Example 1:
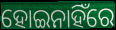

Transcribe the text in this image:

ହୋଇନାହିଁରେ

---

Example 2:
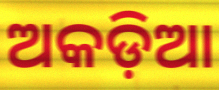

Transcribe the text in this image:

ଅକଡ଼ିଆ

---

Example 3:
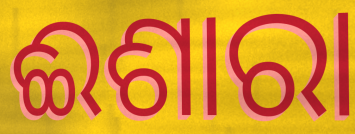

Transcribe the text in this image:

ଈଶାରା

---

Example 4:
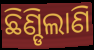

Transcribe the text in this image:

ଛିଣ୍ଡିଲାଣି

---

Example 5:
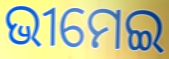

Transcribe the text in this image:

ଭୀମେଇ